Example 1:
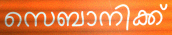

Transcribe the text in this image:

സെബാനിക്ക്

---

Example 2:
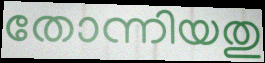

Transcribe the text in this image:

തോന്നിയതു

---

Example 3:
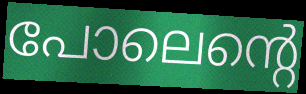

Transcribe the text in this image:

പോലെന്റെ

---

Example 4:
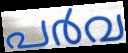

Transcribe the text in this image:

പർവ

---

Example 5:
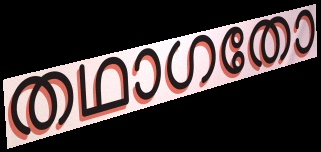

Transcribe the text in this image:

തഥാഗതോ